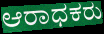
ಆರಾಧಕರು